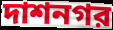
দাশনগর